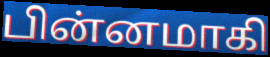
பின்னமாகி